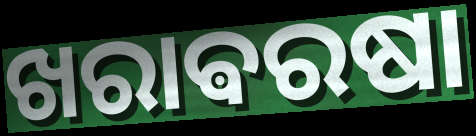
ଖରାଵରଷା